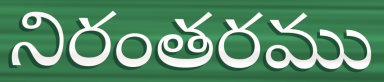
నిరంతరము